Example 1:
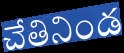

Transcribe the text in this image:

చేతినిండ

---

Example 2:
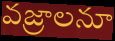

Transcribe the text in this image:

వజ్రాలనూ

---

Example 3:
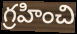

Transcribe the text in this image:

గ్రహించి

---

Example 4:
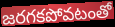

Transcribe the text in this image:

జరగకపోవటంతో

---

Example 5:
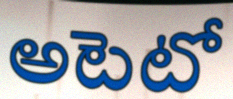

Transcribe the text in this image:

అటెటో